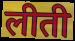
लीती